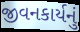
જીવનકાર્યનું